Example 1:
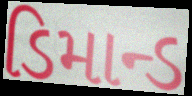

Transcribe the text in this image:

ડિમાન્ડ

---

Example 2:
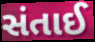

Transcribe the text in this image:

સંતાઈ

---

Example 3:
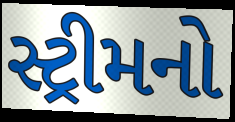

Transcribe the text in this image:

સ્ટ્રીમનો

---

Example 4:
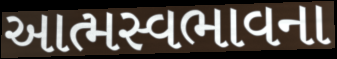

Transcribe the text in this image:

આત્મસ્વભાવના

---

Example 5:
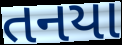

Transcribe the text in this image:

તનયા